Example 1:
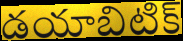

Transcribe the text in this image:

డయాబిటిక్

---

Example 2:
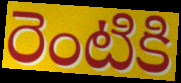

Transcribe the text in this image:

రెంటికి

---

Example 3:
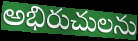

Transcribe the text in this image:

అభిరుచులను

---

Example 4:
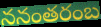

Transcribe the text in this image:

ననంతరంబ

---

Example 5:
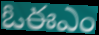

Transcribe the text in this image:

ఓఈఎం